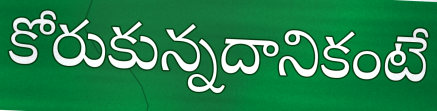
కోరుకున్నదానికంటే